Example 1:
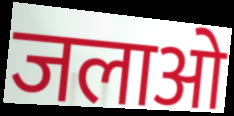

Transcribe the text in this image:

जलाओ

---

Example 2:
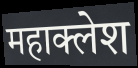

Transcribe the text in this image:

महाक्लेश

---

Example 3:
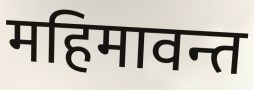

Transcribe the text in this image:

महिमावन्त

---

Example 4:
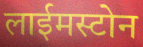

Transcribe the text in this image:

लाईमस्टोन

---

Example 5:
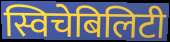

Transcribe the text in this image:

स्विचेबिलिटी